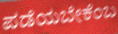
ಪಡೆಯಬೇಕೆಂಬ